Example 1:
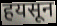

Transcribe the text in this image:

हयसून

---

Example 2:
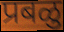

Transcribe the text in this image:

प्रबळु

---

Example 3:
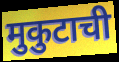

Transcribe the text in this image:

मुकुटाची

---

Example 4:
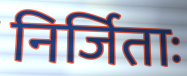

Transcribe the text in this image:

निर्जिताः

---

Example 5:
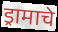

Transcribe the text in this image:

ड्रामाचे